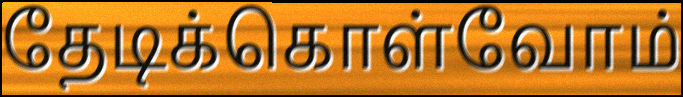
தேடிக்கொள்வோம்